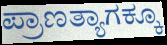
ಪ್ರಾಣತ್ಯಾಗಕ್ಕೂ